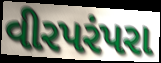
વીરપરંપરા